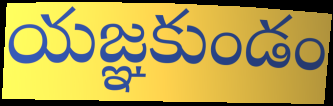
యజ్ఞకుండం